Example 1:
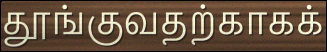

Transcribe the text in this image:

தூங்குவதற்காகக்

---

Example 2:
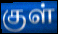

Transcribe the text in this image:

குள்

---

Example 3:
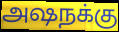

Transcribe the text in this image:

அஷநக்கு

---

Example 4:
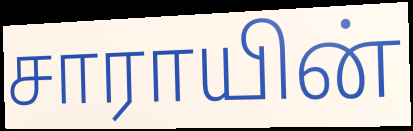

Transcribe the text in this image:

சாராயின்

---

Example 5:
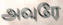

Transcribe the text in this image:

அவுரே